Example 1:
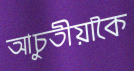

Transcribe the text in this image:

আচুতীয়াকৈ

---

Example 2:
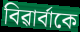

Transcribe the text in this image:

বিৱাৰ্বাকে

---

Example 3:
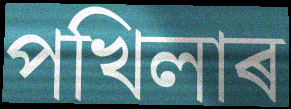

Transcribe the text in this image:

পখিলাৰ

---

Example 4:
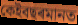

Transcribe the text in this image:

কেইবছৰমানত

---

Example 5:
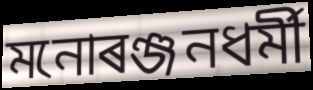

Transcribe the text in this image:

মনোৰঞ্জনধৰ্মী